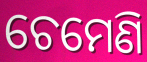
ଚେମେଣି